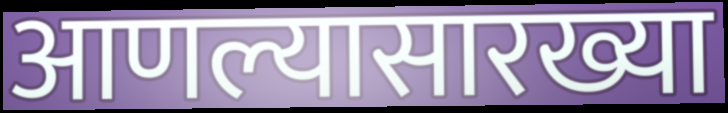
आणल्यासारख्या